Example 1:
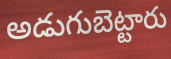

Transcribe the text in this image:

అడుగుబెట్టారు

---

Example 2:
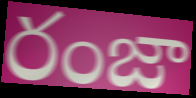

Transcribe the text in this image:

రంజా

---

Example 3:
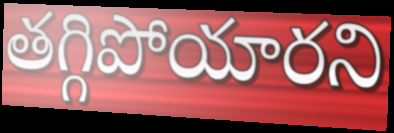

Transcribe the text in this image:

తగ్గిపోయారని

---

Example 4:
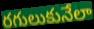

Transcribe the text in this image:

రగులుకునేలా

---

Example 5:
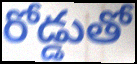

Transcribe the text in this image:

రోడ్డుతో